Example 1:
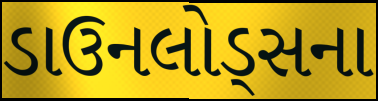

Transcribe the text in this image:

ડાઉનલોડ્સના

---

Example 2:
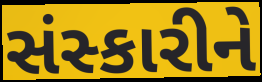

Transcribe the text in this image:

સંસ્કારીને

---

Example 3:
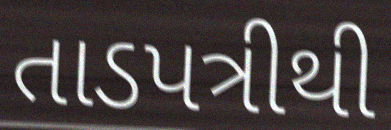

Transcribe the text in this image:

તાડપત્રીથી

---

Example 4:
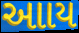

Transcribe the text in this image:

આાય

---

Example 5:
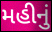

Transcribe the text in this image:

મહીનું